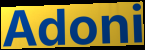
Adoni